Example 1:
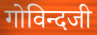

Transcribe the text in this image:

गोविन्दजी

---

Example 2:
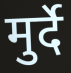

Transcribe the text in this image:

मुर्दे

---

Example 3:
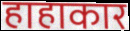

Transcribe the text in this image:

हाहाकार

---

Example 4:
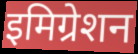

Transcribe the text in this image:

इमिग्रेशन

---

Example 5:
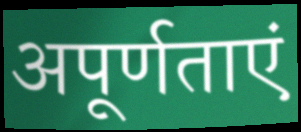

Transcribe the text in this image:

अपूर्णताएं